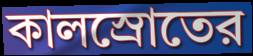
কালস্রোতের